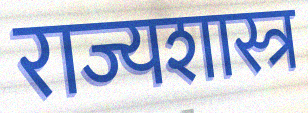
राज्यशास्त्र